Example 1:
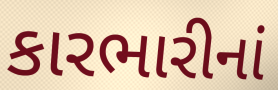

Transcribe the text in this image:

કારભારીનાં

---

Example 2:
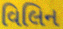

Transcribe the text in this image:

વિલિન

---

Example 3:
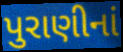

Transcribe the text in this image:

પુરાણીનાં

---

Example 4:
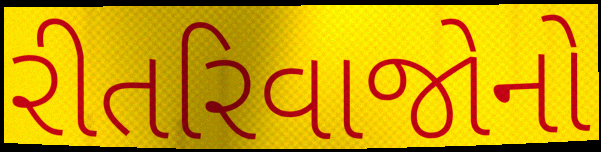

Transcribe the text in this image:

રીતરિવાજોનો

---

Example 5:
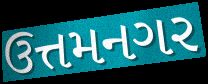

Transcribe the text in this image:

ઉત્તમનગર